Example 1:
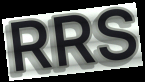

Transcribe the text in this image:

RRS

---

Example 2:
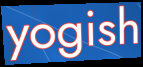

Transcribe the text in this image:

yogish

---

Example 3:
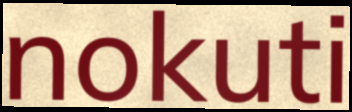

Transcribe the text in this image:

nokuti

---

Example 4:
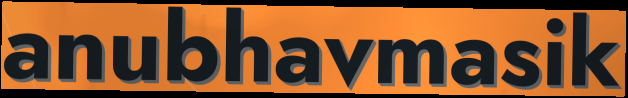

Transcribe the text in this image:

anubhavmasik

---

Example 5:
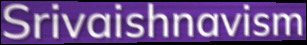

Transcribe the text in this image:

Srivaishnavism